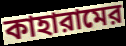
কাহারামের